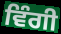
ਵਿੰਗੀ